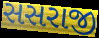
સસરાજી